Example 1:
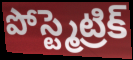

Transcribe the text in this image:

పోస్ట్మెట్రిక్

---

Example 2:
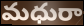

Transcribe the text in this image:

మధురా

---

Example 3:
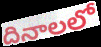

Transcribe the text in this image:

దినాలలో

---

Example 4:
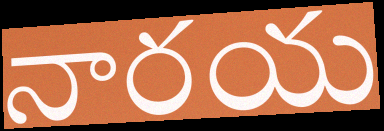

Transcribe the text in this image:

నారయ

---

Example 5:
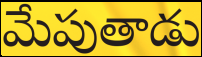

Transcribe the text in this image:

మేపుతాడు